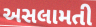
અસલામતી